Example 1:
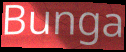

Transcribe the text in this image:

Bunga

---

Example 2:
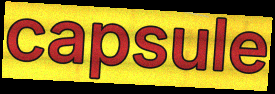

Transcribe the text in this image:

capsule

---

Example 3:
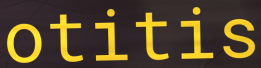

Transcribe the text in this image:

otitis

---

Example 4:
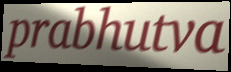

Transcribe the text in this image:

prabhutva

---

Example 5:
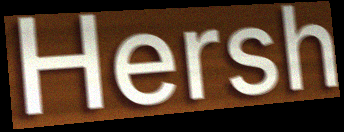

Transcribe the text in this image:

Hersh